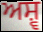
ਅਸ਼੍ਵ